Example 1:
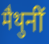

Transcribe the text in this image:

मैथुनीं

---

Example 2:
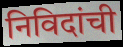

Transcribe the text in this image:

निविदांची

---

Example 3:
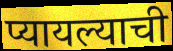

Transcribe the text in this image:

प्यायल्याची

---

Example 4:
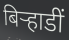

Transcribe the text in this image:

बिर्‍हाडीं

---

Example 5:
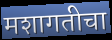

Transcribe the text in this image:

मशागतीचा